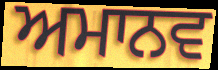
ਅਮਾਨਵ